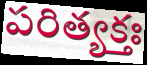
పరిత్యక్తః